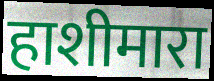
हाशीमारा